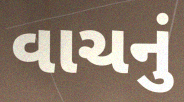
વાચનું